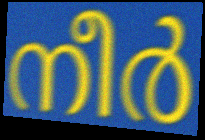
നീർ